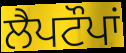
ਲੈਪਟੌਪਾਂ